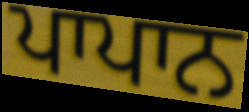
ਪਾਪਾਨ